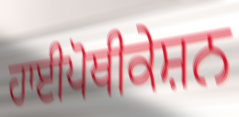
ਹਾਈਪੋਥੀਕੇਸ਼ਨ